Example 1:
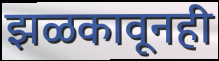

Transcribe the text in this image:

झळकावूनही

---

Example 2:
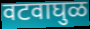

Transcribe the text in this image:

वटवाघुळ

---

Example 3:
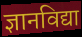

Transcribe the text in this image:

ज्ञानविद्या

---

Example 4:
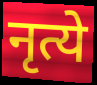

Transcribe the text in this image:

नृत्ये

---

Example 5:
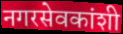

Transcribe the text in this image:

नगरसेवकांशी